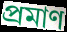
প্ৰমাণ